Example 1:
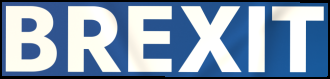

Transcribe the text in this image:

BREXIT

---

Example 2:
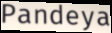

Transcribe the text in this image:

Pandeya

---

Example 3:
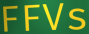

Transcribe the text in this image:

FFVs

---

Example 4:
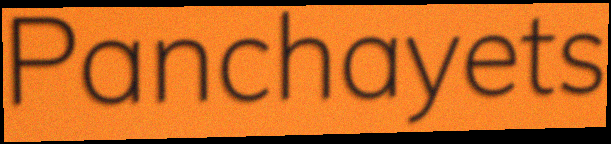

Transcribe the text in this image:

Panchayets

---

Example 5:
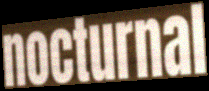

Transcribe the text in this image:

nocturnal